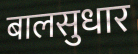
बालसुधार